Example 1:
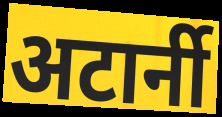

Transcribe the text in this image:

अटार्नी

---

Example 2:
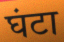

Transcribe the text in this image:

घंटा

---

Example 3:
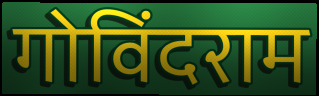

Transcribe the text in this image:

गोविंदराम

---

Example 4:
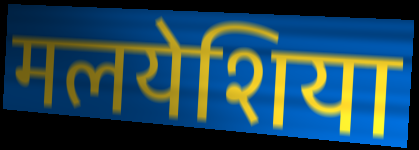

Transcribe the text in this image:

मलयेशिया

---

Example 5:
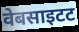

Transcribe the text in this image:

वेबसाइटट